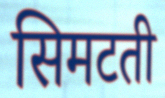
सिमटती